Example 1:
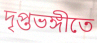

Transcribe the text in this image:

দৃপ্তভঙ্গীতে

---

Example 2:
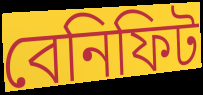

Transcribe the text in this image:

বেনিফিট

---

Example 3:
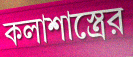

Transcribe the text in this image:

কলাশাস্ত্রের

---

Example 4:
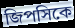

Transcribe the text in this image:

জিপসিকে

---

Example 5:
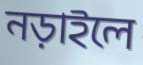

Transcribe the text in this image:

নড়াইলে